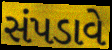
સંપડાવે